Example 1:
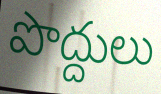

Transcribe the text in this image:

పొద్దులు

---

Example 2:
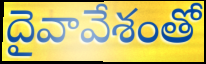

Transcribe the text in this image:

దైవావేశంతో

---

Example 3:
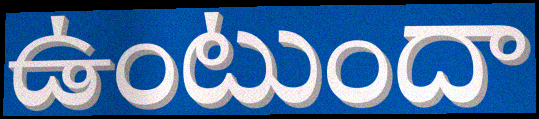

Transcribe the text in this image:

ఉంటుందా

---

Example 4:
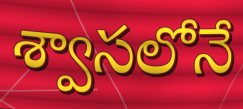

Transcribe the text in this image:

శ్వాసలోనే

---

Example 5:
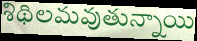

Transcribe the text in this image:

శిథిలమవుతున్నాయి